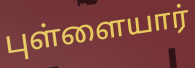
புள்ளையார்